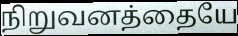
நிறுவனத்தையே